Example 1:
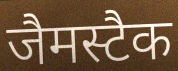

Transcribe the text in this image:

जैमस्टैक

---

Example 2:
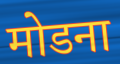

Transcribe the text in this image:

मोडना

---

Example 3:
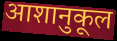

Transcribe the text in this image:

आशानुकूल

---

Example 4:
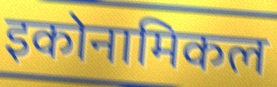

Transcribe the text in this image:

इकोनामिकल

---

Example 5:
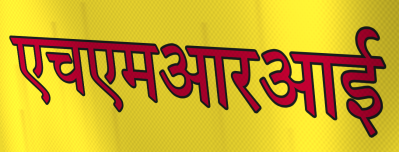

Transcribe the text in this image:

एचएमआरआई